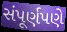
સંપૂર્ણપણે